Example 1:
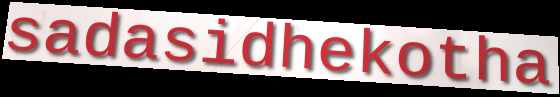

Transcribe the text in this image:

sadasidhekotha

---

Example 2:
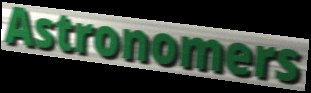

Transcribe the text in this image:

Astronomers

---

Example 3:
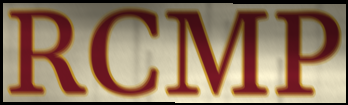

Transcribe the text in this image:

RCMP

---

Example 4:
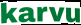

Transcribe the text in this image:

karvu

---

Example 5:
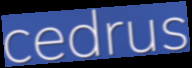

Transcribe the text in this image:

cedrus